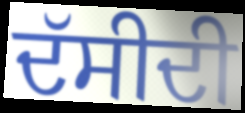
ਦੱਸੀਦੀ